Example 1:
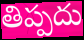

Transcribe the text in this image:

తిప్పదు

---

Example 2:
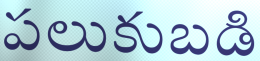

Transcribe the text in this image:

పలుకుబడి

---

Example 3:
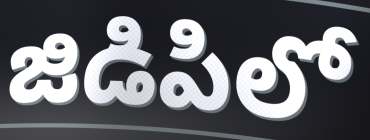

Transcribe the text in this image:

జిడిపిలో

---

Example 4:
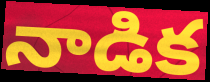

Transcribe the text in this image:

నాడిక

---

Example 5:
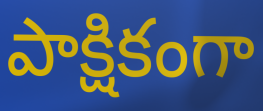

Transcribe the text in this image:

పాక్షికంగా